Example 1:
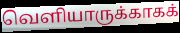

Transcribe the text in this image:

வெளியாருக்காகக்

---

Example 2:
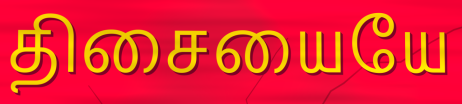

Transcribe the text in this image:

திசையையே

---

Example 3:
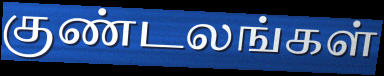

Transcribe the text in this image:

குண்டலங்கள்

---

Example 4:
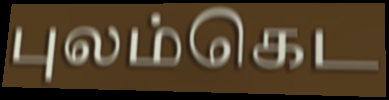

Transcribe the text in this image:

புலம்கெட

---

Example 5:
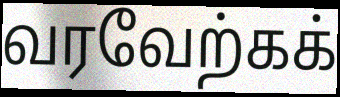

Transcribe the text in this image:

வரவேற்கக்